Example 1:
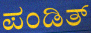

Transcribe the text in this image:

ಪಂಡಿತ್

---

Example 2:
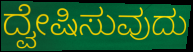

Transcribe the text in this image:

ದ್ವೇಷಿಸುವುದು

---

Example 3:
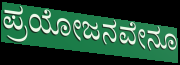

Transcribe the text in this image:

ಪ್ರಯೋಜನವೇನೂ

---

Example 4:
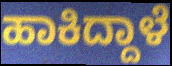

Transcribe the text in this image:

ಹಾಕಿದ್ದಾಳೆ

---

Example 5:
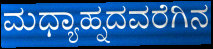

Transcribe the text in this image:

ಮಧ್ಯಾಹ್ನದವರೆಗಿನ